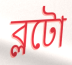
ব্লটো